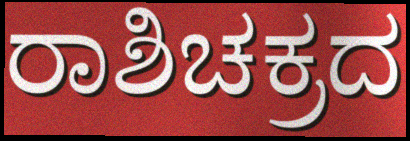
ರಾಶಿಚಕ್ರದ